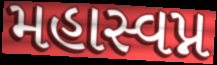
મહાસ્વપ્ન